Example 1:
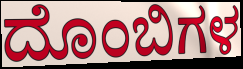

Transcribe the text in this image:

ದೊಂಬಿಗಳ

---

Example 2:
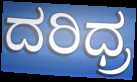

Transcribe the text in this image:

ದರಿಧ್ರ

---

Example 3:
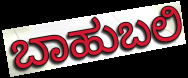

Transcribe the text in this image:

ಬಾಹುಬಲಿ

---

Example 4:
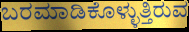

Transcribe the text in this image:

ಬರಮಾಡಿಕೊಳ್ಳುತ್ತಿರುವ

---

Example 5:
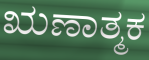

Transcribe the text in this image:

ಋಣಾತ್ಮಕ